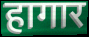
हागार